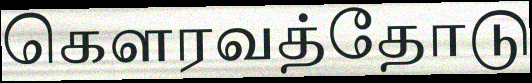
கௌரவத்தோடு